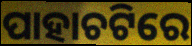
ପାହାଚଟିରେ